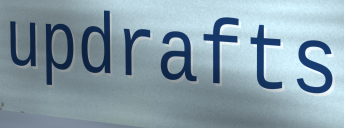
updrafts